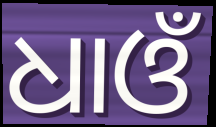
ଧାଓଁ